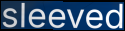
sleeved